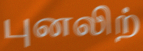
புனலிற்